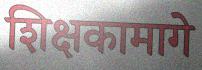
शिक्षकामागे